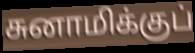
சுனாமிக்குப்